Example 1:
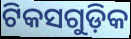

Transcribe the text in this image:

ଟିକସଗୁଡ଼ିକ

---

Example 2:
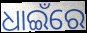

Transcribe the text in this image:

ଧାଇଁରେ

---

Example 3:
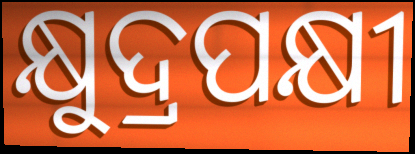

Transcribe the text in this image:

କ୍ଷୁଦ୍ରପକ୍ଷୀ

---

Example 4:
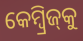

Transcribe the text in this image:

କେମ୍ୱ୍ରିଜ୍‌କୁ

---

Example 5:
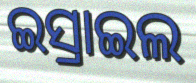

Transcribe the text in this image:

ଇସ୍ରାଇଲ